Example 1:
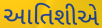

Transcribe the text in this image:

આતિશીએ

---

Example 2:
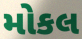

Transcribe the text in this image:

મોકલ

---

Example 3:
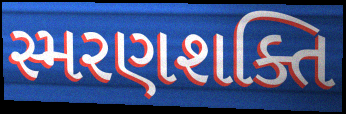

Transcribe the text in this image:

સ્મરણશક્તિ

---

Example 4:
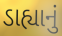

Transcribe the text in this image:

ડાહ્યાનું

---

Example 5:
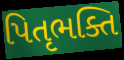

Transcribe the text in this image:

પિતૃભક્તિ